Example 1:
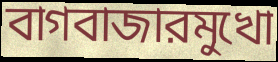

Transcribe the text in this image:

বাগবাজারমুখো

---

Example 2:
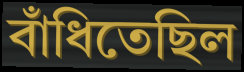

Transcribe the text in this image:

বাঁধিতেছিল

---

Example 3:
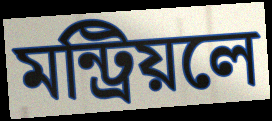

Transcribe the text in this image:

মন্ট্রিয়লে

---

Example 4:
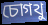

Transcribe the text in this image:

চোগথু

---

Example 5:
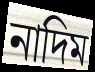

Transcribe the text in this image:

নাদিম